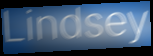
Lindsey